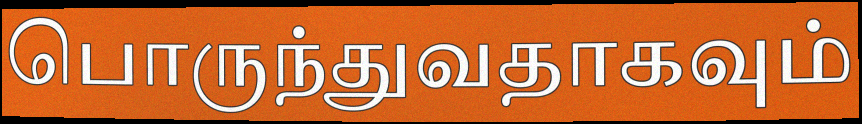
பொருந்துவதாகவும்